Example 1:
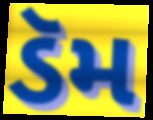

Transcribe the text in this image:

ડૅમ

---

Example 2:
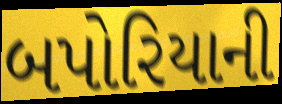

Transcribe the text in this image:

બપોરિયાની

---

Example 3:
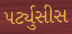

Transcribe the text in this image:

પર્ટ્યુસીસ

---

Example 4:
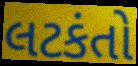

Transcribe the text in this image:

લટકંતો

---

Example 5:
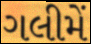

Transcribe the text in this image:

ગલીમેં